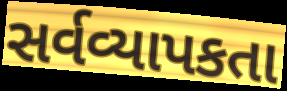
સર્વવ્યાપકતા